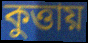
কুত্তায়